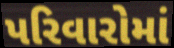
પરિવારોમાં